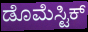
ಡೊಮೆಸ್ಟಿಕ್